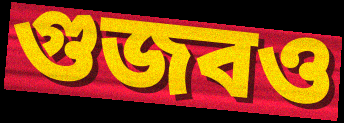
গুজবও